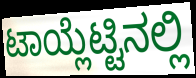
ಟಾಯ್ಲೆಟ್ಟಿನಲ್ಲಿ